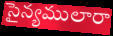
సైన్యములారా